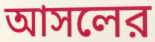
আসলের